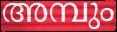
അമ്പും